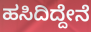
ಹಸಿದಿದ್ದೇನೆ